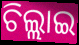
ଚିଲ୍ଲାଇ